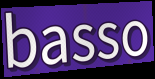
basso